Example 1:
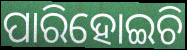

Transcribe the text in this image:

ପାରିହୋଇଚି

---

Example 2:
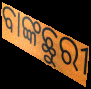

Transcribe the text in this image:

ବାଙ୍କଛୁରୀ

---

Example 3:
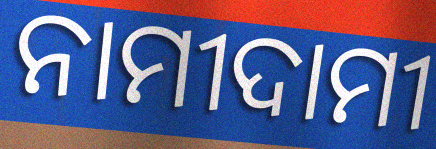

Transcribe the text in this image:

ନାମୀଦାମୀ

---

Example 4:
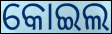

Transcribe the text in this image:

କୋଇଲ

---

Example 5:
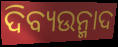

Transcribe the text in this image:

ଦିବ୍ୟଉନ୍ମାଦ